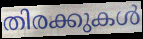
തിരക്കുകൾ